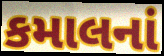
કમાલનાં